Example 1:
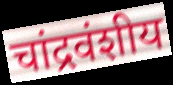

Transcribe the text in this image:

चांद्रवंशीय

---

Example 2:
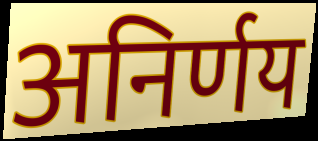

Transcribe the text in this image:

अनिर्णय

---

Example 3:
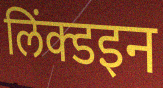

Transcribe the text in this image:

लिंक्डइन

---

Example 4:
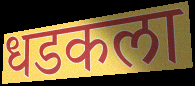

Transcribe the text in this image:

धडकला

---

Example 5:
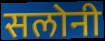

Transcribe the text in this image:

सलोनी